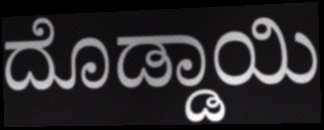
ದೊಡ್ಡಾಯಿ